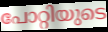
പോറ്റിയുടെ